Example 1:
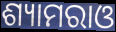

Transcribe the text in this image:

ଶ୍ୟାମରାଓ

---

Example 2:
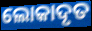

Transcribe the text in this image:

ଲୋକାଦୃତ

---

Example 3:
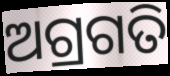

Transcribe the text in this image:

ଅଗ୍ରଗତି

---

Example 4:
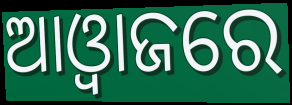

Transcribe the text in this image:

ଆଓ୍ୱାଜରେ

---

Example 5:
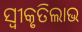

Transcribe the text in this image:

ସ୍ଵୀକୃତିଲାଭ